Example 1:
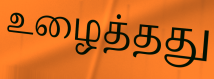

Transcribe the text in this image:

உழைத்தது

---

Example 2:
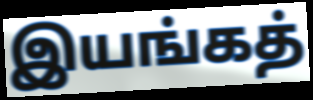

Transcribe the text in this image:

இயங்கத்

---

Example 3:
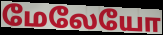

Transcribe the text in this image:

மேலேயோ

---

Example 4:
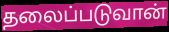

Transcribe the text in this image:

தலைப்படுவான்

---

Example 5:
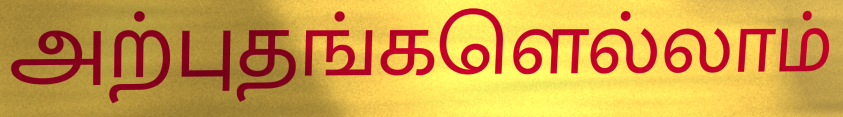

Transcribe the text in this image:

அற்புதங்களெல்லாம்